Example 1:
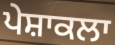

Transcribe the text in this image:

ਪੇਸ਼ਾਕਲਾ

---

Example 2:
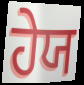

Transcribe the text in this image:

ਹੇਯ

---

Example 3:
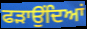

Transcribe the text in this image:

ਫੜਾਉਂਦਿਆਂ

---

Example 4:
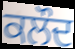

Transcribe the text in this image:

ਕਲੌਦ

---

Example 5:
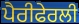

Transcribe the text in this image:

ਪੈਰੀਫੇਰਲੀ